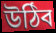
উঠিব